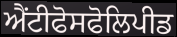
ਐਂਟੀਫੋਸਫੋਲਿਪੀਡ